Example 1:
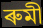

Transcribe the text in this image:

ৰুমী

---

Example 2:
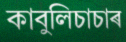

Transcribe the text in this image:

কাবুলিচাচাৰ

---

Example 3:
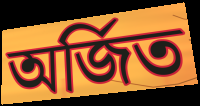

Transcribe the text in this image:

অৰ্জিত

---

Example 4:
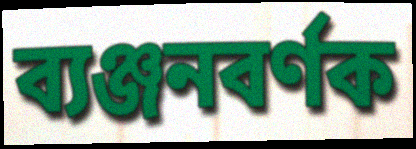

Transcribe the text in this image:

ব্যঞ্জনবৰ্ণক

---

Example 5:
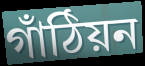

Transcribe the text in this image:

গাঁঠিয়ন